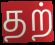
தற்